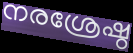
നരശ്രേഷ്ഠ